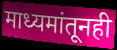
माध्यमांतूनही